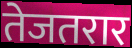
तेजतरार